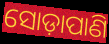
ସୋଡ଼ାପାଣି